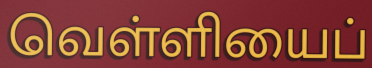
வெள்ளியைப்